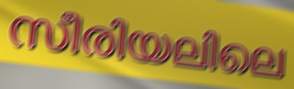
സീരിയലിലെ